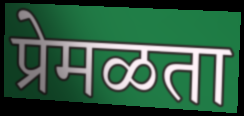
प्रेमळता